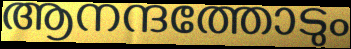
ആനന്ദത്തോടും